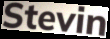
Stevin